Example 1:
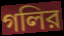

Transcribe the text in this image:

গলির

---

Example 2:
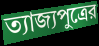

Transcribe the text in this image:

ত্যাজ্যপুত্রের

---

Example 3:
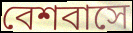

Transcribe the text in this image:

বেশবাসে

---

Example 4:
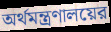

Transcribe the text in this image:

অর্থমন্ত্রণালয়ের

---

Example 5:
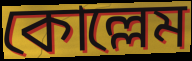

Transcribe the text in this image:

কোল্লেম